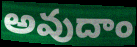
అవుదాం